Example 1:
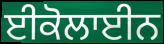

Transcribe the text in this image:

ਈਕੋਲਾਈਨ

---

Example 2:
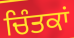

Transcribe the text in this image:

ਚਿੰਤਕਾਂ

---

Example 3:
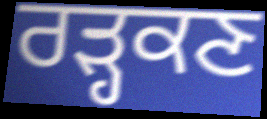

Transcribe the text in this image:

ਰੜ੍ਹਕਣ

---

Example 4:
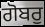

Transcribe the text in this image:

ਗੋਬਰੁ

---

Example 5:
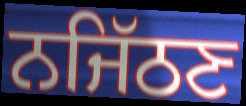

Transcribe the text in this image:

ਨਜਿੱਠਣ